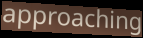
approaching